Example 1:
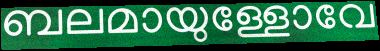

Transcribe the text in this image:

ബലമായുള്ളോവേ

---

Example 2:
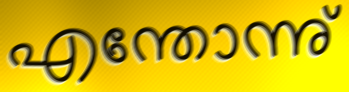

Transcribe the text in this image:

എന്തോന്നു്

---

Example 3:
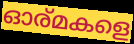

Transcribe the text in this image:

ഓര്മകളെ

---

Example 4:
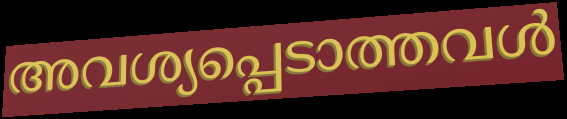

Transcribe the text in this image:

അവശ്യപ്പെടാത്തവൾ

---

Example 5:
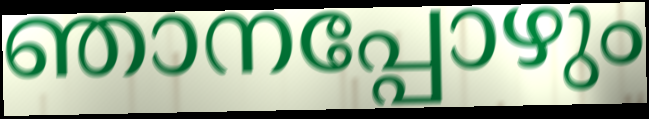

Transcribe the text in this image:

ഞാനപ്പോഴും